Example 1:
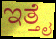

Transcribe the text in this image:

ಇತ್ತೈ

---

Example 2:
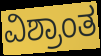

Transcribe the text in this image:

ವಿಶ್ರಾಂತ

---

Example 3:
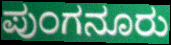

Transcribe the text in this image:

ಪುಂಗನೂರು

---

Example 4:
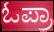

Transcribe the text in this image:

ಓಪ್ರಾ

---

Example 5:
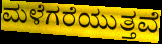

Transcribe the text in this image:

ಮಳೆಗರೆಯುತ್ತವೆ